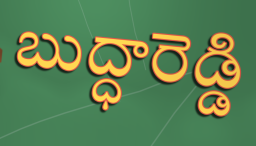
బుద్ధారెడ్డి